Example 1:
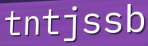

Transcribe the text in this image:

tntjssb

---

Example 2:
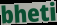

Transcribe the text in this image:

bheti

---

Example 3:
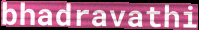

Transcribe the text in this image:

bhadravathi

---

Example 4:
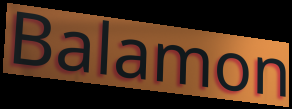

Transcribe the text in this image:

Balamon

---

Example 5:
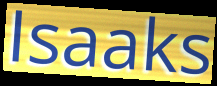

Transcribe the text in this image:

Isaaks